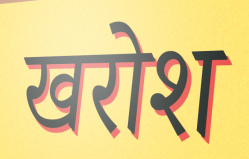
खरोश